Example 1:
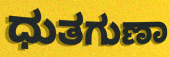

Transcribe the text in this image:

ಧುತಗುಣಾ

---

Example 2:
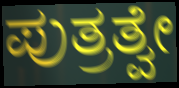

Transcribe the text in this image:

ಪುತ್ರತ್ವೇ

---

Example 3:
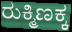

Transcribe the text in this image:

ರುಕ್ಮಿಣಕ್ಕ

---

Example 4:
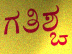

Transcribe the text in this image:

ಗತಿಶ್ಚ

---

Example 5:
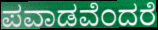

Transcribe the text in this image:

ಪವಾಡವೆಂದರೆ